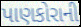
પાણકોરાની